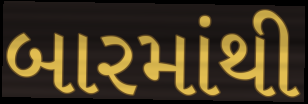
બારમાંથી